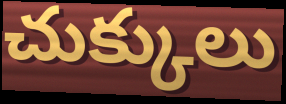
చుక్కులు